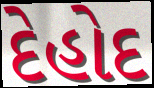
દેહોદ